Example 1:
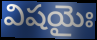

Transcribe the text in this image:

విషయైః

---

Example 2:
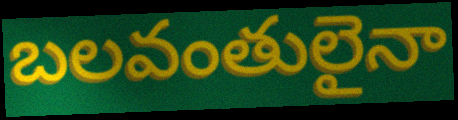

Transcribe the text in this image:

బలవంతులైనా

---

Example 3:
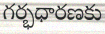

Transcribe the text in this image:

గర్భధారణకు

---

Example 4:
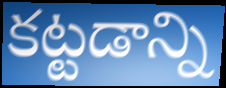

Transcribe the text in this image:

కట్టడాన్ని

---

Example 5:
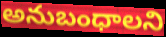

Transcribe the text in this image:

అనుబంధాలని